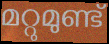
മറ്റുമുണ്ട്